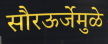
सौरऊर्जेमुळे